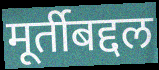
मूर्तीबद्दल